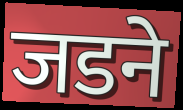
जडने